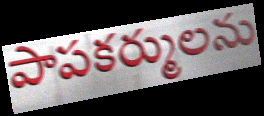
పాపకర్ములను